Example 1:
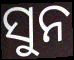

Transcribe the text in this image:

ସୁନ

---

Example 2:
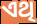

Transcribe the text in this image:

ଏଥି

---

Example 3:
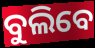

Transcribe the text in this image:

ବୁଲିବେ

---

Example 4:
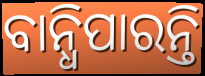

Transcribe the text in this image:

ବାନ୍ଧିପାରନ୍ତି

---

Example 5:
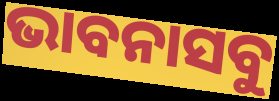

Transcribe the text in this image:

ଭାବନାସବୁ